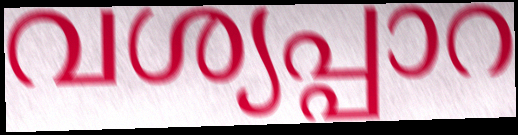
വശ്യപ്പാറ